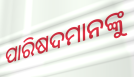
ପାରିଷଦମାନଙ୍କୁ